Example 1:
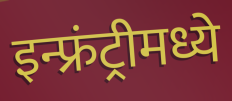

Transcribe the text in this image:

इन्फ्रंट्रीमध्ये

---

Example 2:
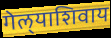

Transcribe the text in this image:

गेल्याशिवाय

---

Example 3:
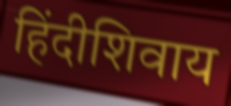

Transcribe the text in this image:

हिंदीशिवाय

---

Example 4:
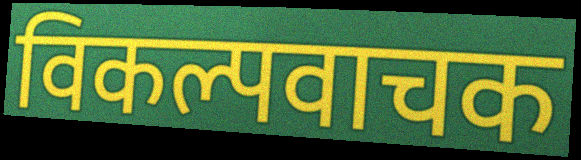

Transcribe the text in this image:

विकल्पवाचक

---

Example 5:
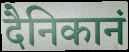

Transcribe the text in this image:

दैनिकानं